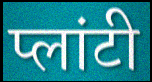
प्लांटी